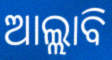
ଆଲ୍ଲାବି